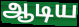
ஆடிய